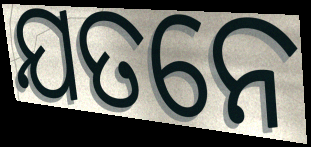
ଯତନେ